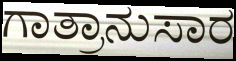
ಗಾತ್ರಾನುಸಾರ